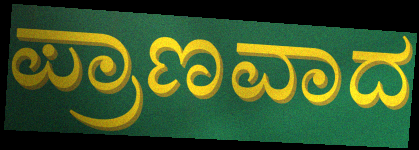
ಪ್ರಾಣವಾದ